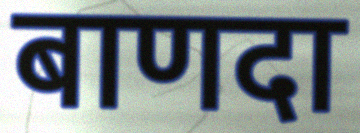
बाणदा